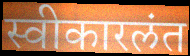
स्वीकारलंत